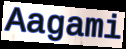
Aagami